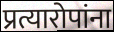
प्रत्यारोपांना